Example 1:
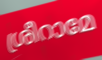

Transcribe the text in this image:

ശ്രീറാമേ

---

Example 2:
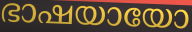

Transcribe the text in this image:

ഭാഷയായോ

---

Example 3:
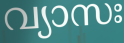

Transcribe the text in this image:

വ്യാസഃ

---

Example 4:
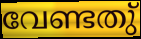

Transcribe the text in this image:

വേണ്ടതു്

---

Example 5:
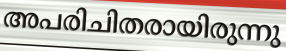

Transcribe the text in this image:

അപരിചിതരായിരുന്നു